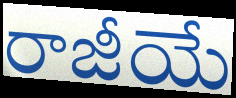
రాజీయే